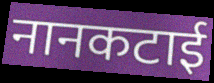
नानकटाई